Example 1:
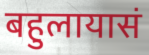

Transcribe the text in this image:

बहुलायासं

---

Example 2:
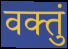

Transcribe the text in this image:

वक्तुं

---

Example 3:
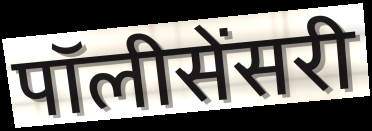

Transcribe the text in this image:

पॉलीसेंसरी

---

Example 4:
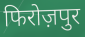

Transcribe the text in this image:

फिरोज़पुर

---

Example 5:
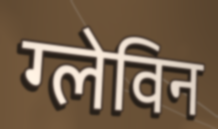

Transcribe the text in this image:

ग्लेविन